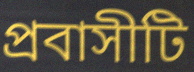
প্রবাসীটি